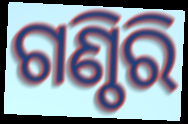
ଗଣ୍ଠିରି